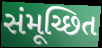
સંમૂચ્છિત